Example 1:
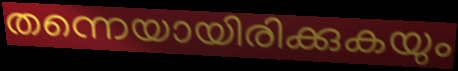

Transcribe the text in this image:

തന്നെയായിരിക്കുകയും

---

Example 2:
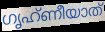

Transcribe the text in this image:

ഗൃഹ്ണീയാത്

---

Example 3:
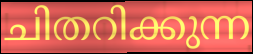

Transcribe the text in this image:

ചിതറിക്കുന്ന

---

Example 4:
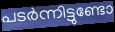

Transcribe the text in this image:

പടർന്നിട്ടുണ്ടോ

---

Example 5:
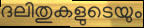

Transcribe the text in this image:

ദലിതുകളുടെയും